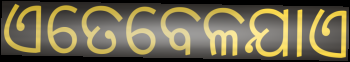
ଏତେବେଳଯାଏ